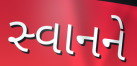
સ્વાનને